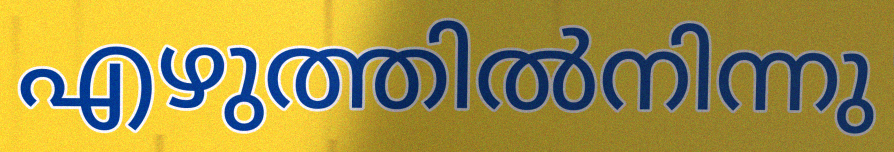
എഴുത്തിൽനിന്നു